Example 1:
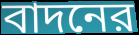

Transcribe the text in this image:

বাদনের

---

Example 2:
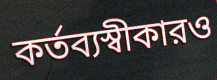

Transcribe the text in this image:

কর্তব্যস্বীকারও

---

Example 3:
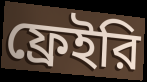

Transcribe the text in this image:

ফ্রেইরি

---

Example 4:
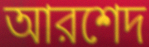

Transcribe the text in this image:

আরশেদ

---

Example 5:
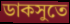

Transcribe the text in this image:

ডাকসুতে